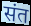
संत